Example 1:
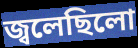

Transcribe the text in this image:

জ্বলেছিলো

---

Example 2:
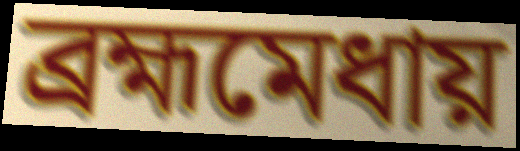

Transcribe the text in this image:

ব্রহ্মমেধায়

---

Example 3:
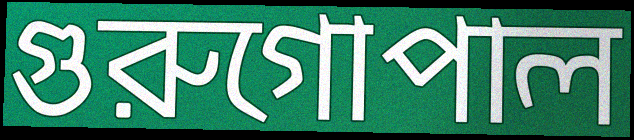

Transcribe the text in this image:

গুরুগোপাল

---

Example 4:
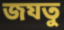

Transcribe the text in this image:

জযতু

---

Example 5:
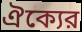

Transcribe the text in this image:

ঐক্যের